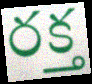
రక్త